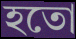
হতো